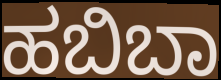
ಹಬಿಬಾ